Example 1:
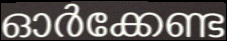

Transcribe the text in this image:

ഓർക്കേണ്ട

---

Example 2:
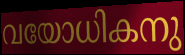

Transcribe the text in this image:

വയോധികനു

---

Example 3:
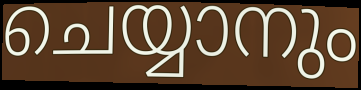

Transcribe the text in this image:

ചെയ്യാനും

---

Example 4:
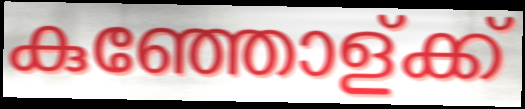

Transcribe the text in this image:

കുഞ്ഞോള്ക്ക്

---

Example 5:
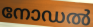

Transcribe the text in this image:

നോഡൽ